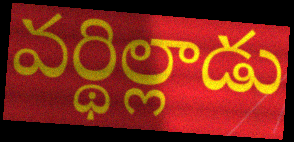
వర్థిల్లాడు